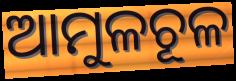
ଆମୁଳଚୂଳ